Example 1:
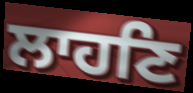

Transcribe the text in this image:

ਲਾਹਣਿ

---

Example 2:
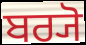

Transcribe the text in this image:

ਬਰ੍ਯੋ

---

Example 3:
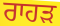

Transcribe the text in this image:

ਰਾਹੜ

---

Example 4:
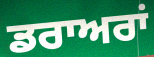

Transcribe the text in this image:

ਡਰਾਅਰਾਂ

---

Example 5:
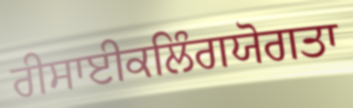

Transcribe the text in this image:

ਰੀਸਾਈਕਲਿੰਗਯੋਗਤਾ